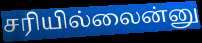
சரியில்லைன்னு